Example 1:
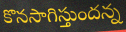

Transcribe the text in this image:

కొనసాగిస్తుందన్న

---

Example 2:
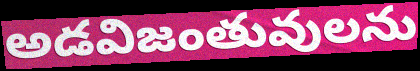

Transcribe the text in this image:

అడవిజంతువులను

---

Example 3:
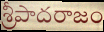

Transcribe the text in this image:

శ్రీపాదరాజం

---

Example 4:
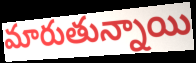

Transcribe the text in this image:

మారుతున్నాయి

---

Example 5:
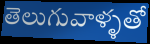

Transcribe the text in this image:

తెలుగువాళ్ళతో